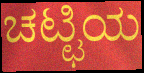
ಚಟ್ಟಿಯ